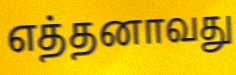
எத்தனாவது